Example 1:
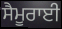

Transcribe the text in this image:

ਸੈਮੂਰਾਈ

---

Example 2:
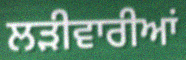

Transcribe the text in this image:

ਲੜੀਵਾਰੀਆਂ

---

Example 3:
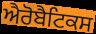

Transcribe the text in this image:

ਐਰੋਬੈਟਿਕਸ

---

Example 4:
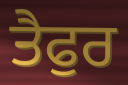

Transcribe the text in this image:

ਤੈਫੁਰ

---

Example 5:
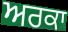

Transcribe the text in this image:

ਅਰਕਾ